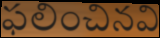
ఫలించినవి